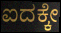
ಐದಕ್ಕೇ